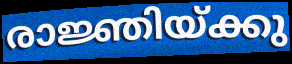
രാജ്ഞിയ്ക്കു